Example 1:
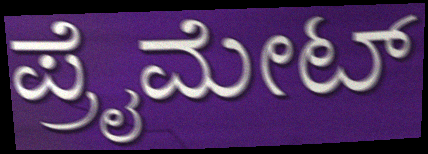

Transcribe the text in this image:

ಪ್ರೈಮೇಟ್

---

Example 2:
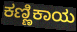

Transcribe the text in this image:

ಕಣ್ಣಿಕಾಯ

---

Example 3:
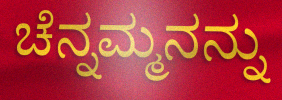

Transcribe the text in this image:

ಚೆನ್ನಮ್ಮನನ್ನು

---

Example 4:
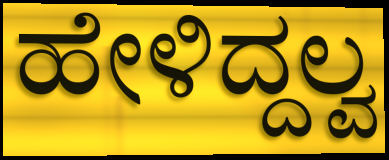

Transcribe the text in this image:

ಹೇಳಿದ್ದಲ್ವ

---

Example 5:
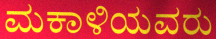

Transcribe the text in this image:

ಮಕಾಳಿಯವರು